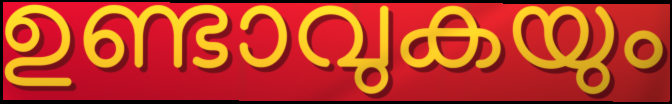
ഉണ്ടാവുകയും